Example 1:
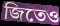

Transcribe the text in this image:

জিতেও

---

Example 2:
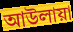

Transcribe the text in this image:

আউলায়া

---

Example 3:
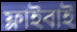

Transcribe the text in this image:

ফ্লাইবাই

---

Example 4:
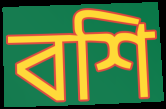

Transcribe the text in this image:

বশি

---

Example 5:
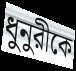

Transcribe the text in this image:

ধুনুরীকে